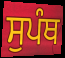
ਸੁਪੰਥ